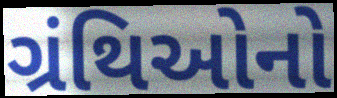
ગ્રંથિઓનો